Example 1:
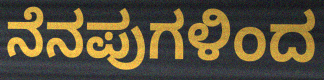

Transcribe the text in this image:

ನೆನಪುಗಳಿಂದ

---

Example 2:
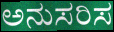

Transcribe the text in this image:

ಅನುಸರಿಸ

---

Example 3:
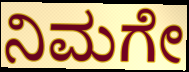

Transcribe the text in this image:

ನಿಮಗೇ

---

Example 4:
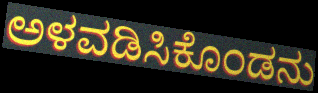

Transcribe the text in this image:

ಅಳವಡಿಸಿಕೊಂಡನು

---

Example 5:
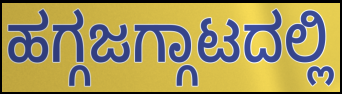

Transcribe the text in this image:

ಹಗ್ಗಜಗ್ಗಾಟದಲ್ಲಿ